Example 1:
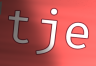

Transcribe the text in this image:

tje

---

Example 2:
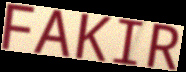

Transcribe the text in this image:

FAKIR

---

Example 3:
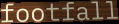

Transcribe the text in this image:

footfall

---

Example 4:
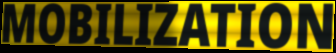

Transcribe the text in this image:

MOBILIZATION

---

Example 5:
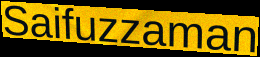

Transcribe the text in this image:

Saifuzzaman